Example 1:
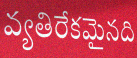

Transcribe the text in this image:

వ్యతిరేకమైనది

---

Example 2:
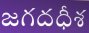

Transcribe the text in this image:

జగదధీశ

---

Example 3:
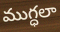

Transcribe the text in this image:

ముగ్ధలా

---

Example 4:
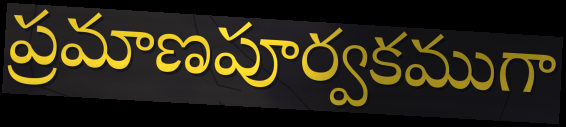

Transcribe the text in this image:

ప్రమాణపూర్వకముగా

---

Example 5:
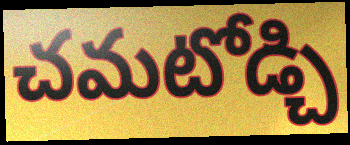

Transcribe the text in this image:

చమటోడ్చి